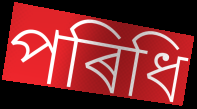
পৰিধি